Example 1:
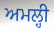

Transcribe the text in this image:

ਅਮਲ੍ਹੀ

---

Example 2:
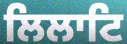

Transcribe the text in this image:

ਲਿਲਾਟਿ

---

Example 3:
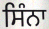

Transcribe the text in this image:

ਸਿੰਨਾ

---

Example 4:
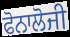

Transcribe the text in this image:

ਫੋਨਾਲੋਜੀ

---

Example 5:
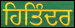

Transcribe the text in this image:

ਹਿਤਿੰਦਰ